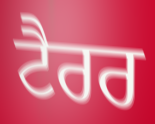
ਟੈਰਰ